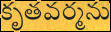
కృతవర్మను